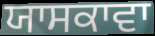
ਯਾਸਕਾਵਾ